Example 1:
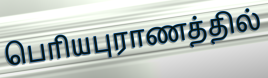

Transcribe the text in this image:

பெரியபுராணத்தில்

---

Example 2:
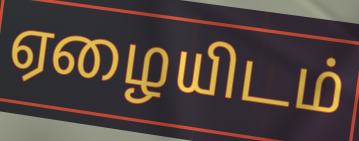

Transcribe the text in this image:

ஏழையிடம்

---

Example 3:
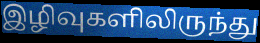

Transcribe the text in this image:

இழிவுகளிலிருந்து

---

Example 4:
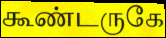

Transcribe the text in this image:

கூண்டருகே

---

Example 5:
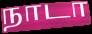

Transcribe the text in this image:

நாடா